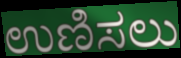
ಉಣಿಸಲು